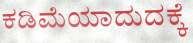
ಕಡಿಮೆಯಾದುದಕ್ಕೆ